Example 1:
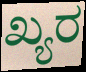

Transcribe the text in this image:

ಖ್ಯರ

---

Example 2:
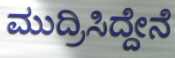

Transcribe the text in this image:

ಮುದ್ರಿಸಿದ್ದೇನೆ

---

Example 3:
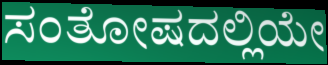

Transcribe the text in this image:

ಸಂತೋಷದಲ್ಲಿಯೇ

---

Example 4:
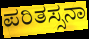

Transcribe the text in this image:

ಪರಿತಸ್ಸನಾ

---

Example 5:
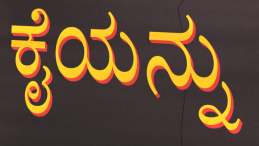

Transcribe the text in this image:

ಕೈಯನ್ನು